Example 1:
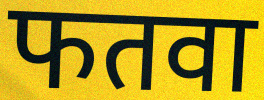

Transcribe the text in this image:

फतवा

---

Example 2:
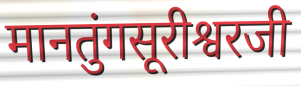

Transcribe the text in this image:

मानतुंगसूरीश्वरजी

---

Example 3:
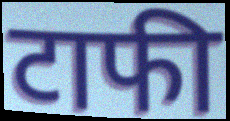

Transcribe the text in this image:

टाफी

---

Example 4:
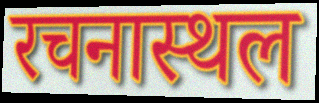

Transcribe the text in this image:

रचनास्थल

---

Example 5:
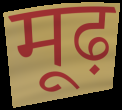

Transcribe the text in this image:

मूढ़